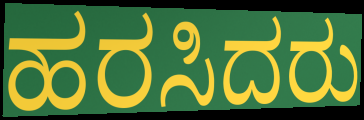
ಹರಸಿದರು